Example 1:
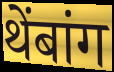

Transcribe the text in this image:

थेंबांग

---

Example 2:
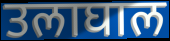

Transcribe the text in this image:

उलाघाल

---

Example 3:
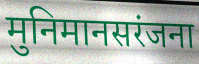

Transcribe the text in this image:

मुनिमानसरंजना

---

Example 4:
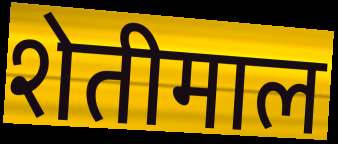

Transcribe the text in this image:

शेतीमाल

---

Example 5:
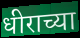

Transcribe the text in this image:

धीराच्या